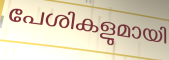
പേശികളുമായി